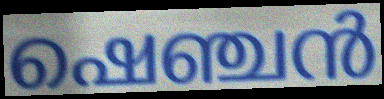
ഷെഞ്ചൻ